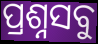
ପ୍ରଶ୍ନସବୁ